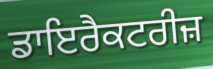
ਡਾਇਰੈਕਟਰੀਜ਼